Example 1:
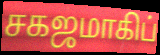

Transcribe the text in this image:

சகஜமாகிப்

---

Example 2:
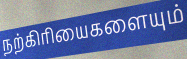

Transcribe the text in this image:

நற்கிரியைகளையும்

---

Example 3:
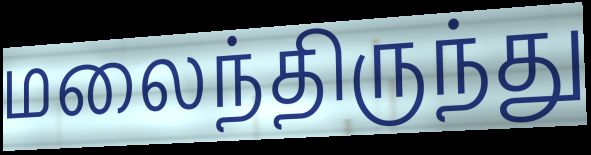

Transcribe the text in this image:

மலைந்திருந்து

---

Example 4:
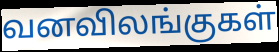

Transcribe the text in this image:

வனவிலங்குகள்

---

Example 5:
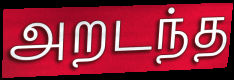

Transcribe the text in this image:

அறடந்த